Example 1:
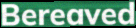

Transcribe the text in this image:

Bereaved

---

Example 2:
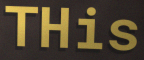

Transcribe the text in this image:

THis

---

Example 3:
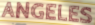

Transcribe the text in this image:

ANGELES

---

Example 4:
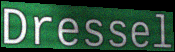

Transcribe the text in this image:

Dressel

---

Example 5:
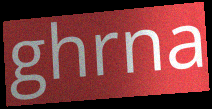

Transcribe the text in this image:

ghrna